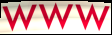
www